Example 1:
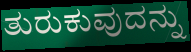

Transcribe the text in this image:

ತುರುಕುವುದನ್ನು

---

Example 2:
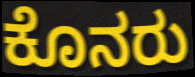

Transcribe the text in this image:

ಕೊನರು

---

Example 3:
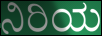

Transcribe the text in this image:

ನಿರಿಯ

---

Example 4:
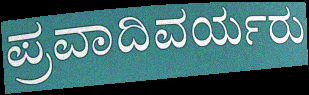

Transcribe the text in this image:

ಪ್ರವಾದಿವರ್ಯರು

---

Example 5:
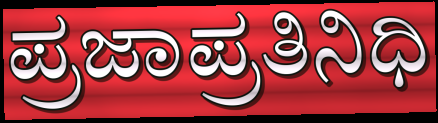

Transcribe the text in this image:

ಪ್ರಜಾಪ್ರತಿನಿಧಿ